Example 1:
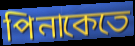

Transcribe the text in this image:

পিনাকেতে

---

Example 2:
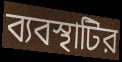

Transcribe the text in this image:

ব্যবস্থাটির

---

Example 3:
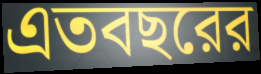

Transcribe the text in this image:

এতবছরের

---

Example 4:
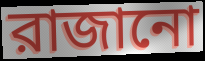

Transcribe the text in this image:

রাজানো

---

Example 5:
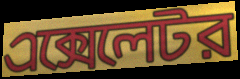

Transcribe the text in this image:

এক্সেলেটর